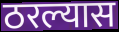
ठरल्यास